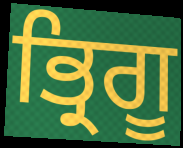
ਭ੍ਰਿਗੂ